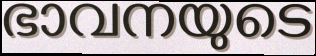
ഭാവനയുടെ